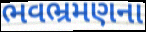
ભવભ્રમણના